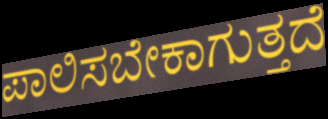
ಪಾಲಿಸಬೇಕಾಗುತ್ತದೆ